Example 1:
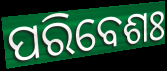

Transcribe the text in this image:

ପରିବେଶଃ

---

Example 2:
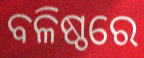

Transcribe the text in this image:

ବଳିଷ୍ଠରେ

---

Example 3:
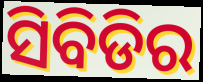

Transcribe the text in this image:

ସିବିଡିର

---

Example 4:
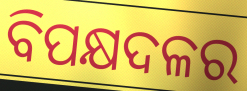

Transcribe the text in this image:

ବିପକ୍ଷଦଳର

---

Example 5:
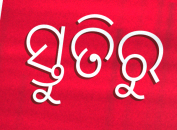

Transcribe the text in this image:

ସ୍ତୁତିରୁ